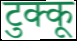
टुक्कू